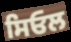
ਸਿਓਲ